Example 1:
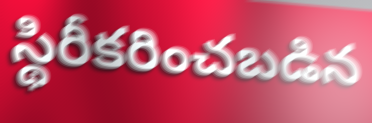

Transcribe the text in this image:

స్థిరీకరించబడిన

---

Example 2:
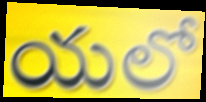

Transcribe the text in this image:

యలో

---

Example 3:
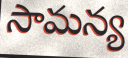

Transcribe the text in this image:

సామన్య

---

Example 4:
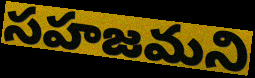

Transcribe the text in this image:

సహజమని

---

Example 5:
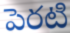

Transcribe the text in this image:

పెరటి